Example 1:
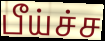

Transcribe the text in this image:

பீய்ச்ச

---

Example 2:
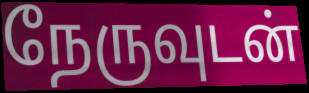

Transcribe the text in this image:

நேருவுடன்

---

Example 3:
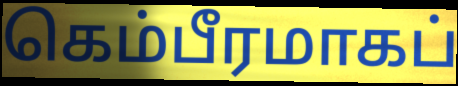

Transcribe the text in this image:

கெம்பீரமாகப்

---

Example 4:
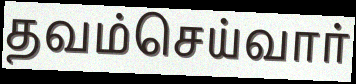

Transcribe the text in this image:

தவம்செய்வார்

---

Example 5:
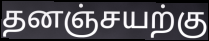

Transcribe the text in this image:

தனஞ்சயற்கு